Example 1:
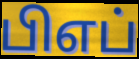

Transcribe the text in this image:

பிஎப்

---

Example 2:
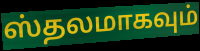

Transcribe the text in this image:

ஸ்தலமாகவும்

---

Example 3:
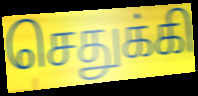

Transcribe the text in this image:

செதுக்கி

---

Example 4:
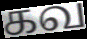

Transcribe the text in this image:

கவ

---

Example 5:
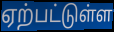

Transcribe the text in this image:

ஏற்பட்டுள்ள